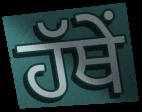
ਹੱਥੇਂ